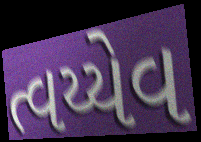
ત્વય્યેવ